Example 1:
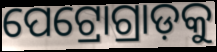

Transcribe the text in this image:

ପେଟ୍ରୋଗ୍ରାଡ଼କୁ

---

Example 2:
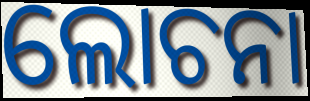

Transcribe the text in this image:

ଲୋଚନା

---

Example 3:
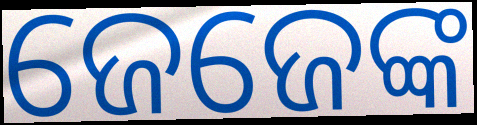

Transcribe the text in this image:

ଜେଜେଙ୍କ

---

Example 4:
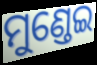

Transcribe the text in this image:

ମୁଣ୍ଡେଇ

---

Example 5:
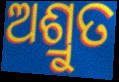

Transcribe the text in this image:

ଅଶ୍ରୁତ